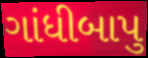
ગાંધીબાપુ